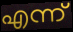
എന്ന്